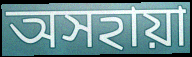
অসহায়া